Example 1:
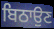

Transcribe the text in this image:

ਬਿਠਾਉਣ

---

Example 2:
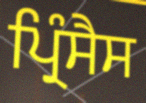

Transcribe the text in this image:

ਪ੍ਰਿੰਸੈਸ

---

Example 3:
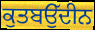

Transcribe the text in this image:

ਕੁਤਬਉੱਦੀਨ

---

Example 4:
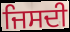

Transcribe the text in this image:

ਜਿਸਦੀ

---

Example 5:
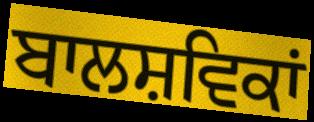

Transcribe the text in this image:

ਬਾਲਸ਼ਵਿਕਾਂ